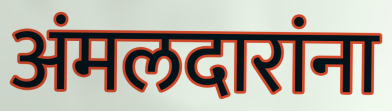
अंमलदारांना